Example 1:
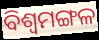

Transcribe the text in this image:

ବିଶ୍ୱମଙ୍ଗଳ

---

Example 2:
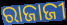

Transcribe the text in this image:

ରାଜାଜୀ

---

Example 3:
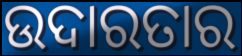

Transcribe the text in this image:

ଉଦାରତାର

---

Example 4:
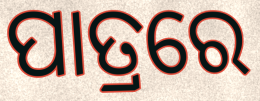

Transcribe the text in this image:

ପାତ୍ରରେ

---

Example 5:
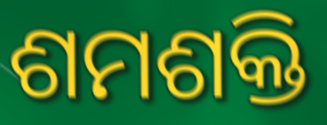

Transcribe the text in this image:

ଶମଶକ୍ତି